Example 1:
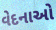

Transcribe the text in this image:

વેદનાઓ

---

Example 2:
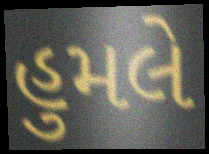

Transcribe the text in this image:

હુમલે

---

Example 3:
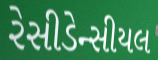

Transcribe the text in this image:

રેસીડેન્સીયલ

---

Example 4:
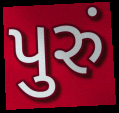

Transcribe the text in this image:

પુરું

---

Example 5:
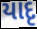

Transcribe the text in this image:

યાદૃ